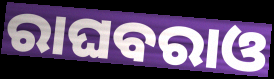
ରାଘବରାଓ